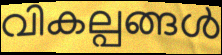
വികല്പങ്ങൾ